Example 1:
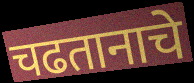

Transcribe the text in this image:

चढतानाचे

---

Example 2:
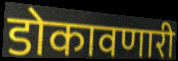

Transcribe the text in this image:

डोकावणारी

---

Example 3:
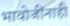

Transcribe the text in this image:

भावोजींनाही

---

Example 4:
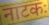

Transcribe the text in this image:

नाटकः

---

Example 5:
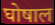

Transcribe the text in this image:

घोषाल